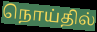
நொய்தில்